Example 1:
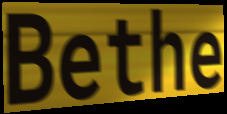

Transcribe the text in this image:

Bethe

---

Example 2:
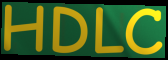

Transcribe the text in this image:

HDLC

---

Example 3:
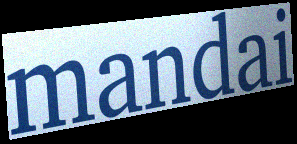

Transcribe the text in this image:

mandai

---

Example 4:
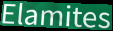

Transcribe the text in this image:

Elamites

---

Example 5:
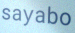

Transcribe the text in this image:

sayabo